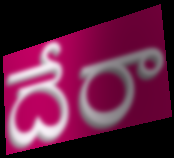
దేరా